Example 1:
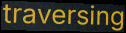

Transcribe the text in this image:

traversing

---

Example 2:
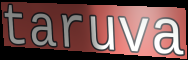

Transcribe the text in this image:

taruva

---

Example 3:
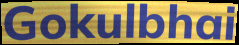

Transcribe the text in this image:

Gokulbhai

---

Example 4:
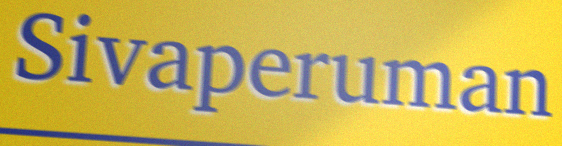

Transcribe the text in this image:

Sivaperuman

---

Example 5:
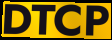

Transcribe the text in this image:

DTCP